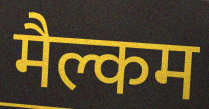
मैल्कम